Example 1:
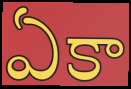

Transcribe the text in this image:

ఏకా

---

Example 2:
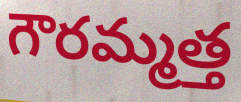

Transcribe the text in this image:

గౌరమ్మత్త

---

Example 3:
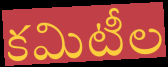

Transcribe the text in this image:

కమిటీల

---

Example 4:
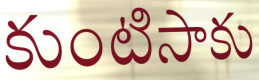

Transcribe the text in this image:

కుంటిసాకు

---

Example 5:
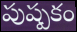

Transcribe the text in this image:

పుష్పకం